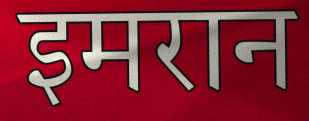
इमरान